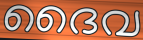
ദൈവ